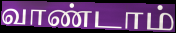
வாண்டாம்